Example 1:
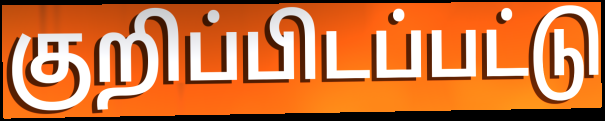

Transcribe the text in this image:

குறிப்பிடப்பட்டு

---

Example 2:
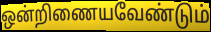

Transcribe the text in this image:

ஒன்றிணையவேண்டும்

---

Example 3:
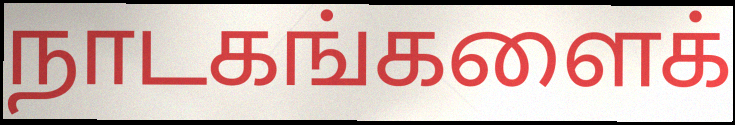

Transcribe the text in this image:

நாடகங்களைக்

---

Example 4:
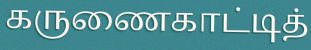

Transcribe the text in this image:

கருணைகாட்டித்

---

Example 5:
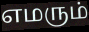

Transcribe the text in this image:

எமரும்